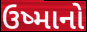
ઉષ્માનો